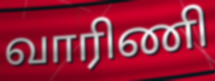
வாரிணி